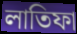
লাতিফা